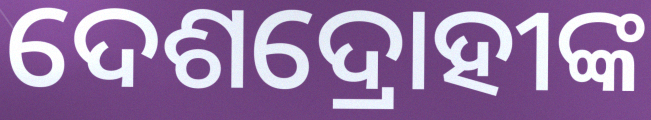
ଦେଶଦ୍ରୋହୀଙ୍କ